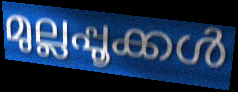
മുല്ലപ്പൂക്കൾ